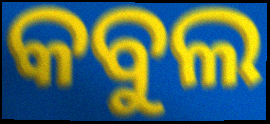
କବୁଲ